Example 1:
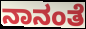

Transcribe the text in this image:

ನಾನಂತೆ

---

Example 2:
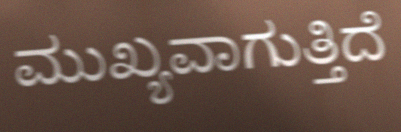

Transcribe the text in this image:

ಮುಖ್ಯವಾಗುತ್ತಿದೆ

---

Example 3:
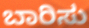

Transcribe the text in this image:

ಬಾರಿಸು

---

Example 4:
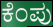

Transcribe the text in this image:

ಕೆಂಪು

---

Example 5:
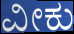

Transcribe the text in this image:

ವೀಕು